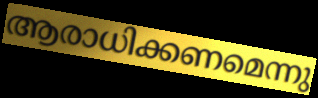
ആരാധിക്കണമെന്നു